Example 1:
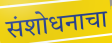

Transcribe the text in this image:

संशोधनाचा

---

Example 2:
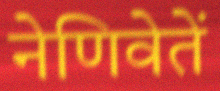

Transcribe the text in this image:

नेणिवेतें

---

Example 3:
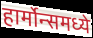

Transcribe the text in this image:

हार्मोन्समध्ये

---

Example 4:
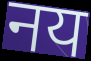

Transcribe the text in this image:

नय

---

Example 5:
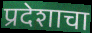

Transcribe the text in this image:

प्रदेशाचा